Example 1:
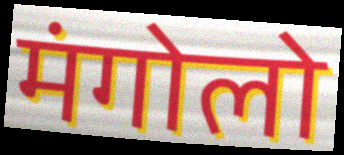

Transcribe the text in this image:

मंगोलो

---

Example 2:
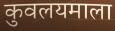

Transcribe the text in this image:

कुवलयमाला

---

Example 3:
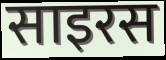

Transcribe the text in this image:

साइरस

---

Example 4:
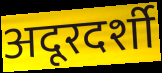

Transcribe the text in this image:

अदूरदर्शी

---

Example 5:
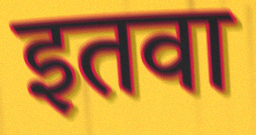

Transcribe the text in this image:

इतवा